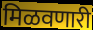
मिळवणारी